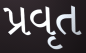
પ્રવૃત